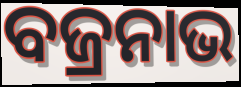
ବଜ୍ରନାଭ